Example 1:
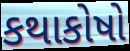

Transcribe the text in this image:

કથાકોષો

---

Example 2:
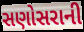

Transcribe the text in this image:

સણોસરાની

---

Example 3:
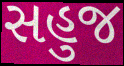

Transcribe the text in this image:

સહુજ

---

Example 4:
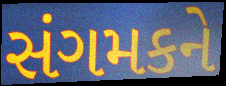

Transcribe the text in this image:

સંગમકને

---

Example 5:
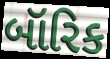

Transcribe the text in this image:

બૉરિક